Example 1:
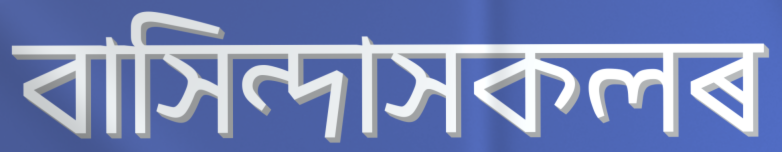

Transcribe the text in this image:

বাসিন্দাসকলৰ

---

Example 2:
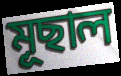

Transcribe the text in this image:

মূছাল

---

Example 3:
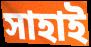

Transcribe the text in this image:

সাহাই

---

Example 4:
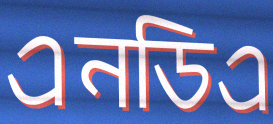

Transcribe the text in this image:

এনডিএ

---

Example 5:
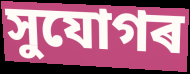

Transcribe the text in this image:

সুযোগৰ